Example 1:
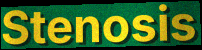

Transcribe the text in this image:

Stenosis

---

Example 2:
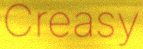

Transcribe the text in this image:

Creasy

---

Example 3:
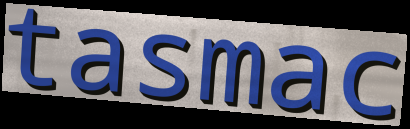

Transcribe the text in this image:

tasmac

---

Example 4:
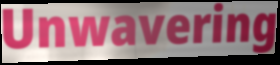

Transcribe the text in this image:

Unwavering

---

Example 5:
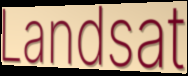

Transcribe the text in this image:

Landsat